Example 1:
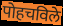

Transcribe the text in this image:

पोहचविले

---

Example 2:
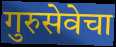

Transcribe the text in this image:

गुरुसेवेचा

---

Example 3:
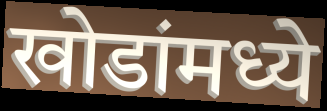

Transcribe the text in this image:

खोडांमध्ये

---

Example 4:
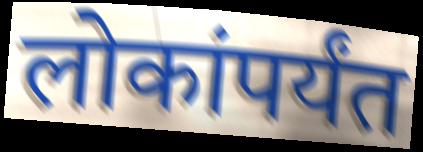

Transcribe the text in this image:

लोकांपर्यंत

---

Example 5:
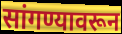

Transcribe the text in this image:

सांगण्यावरून